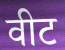
वीट